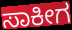
ಸಾಕೀಗ